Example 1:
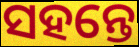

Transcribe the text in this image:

ସହନ୍ତେ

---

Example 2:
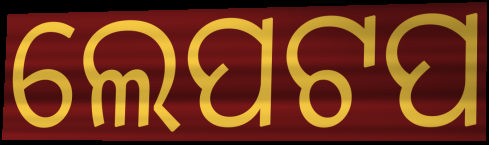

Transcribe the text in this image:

ଲେପଟପ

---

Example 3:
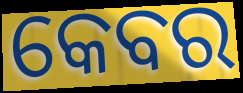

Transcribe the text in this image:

କେବର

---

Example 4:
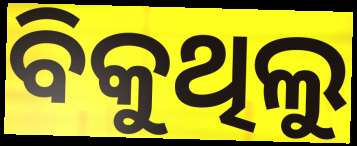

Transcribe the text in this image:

ବିକୁଥିଲୁ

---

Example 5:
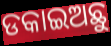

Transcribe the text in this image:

ଡକାଇଅଛୁ